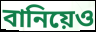
বানিয়েও